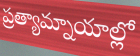
ప్రత్యామ్నాయాల్లో